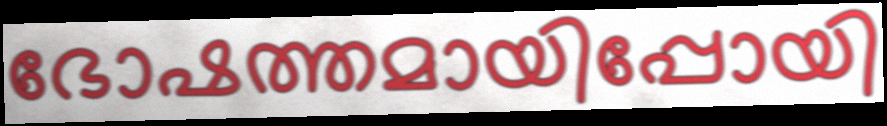
ഭോഷത്തമായിപ്പോയി